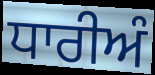
ਧਾਰੀਅੰ